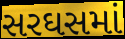
સરઘસમાં